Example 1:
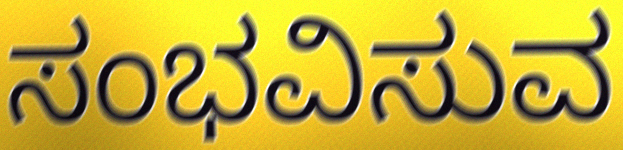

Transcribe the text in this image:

ಸಂಭವಿಸುವ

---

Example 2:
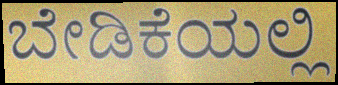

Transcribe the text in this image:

ಬೇಡಿಕೆಯಲ್ಲಿ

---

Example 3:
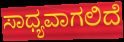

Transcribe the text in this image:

ಸಾಧ್ಯವಾಗಲಿದೆ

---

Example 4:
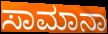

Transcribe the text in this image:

ಸಾಮಾನಾ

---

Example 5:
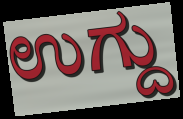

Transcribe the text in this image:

ಉಗ್ದು